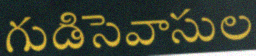
గుడిసెవాసుల